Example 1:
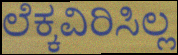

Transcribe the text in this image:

ಲೆಕ್ಕವಿರಿಸಿಲ್ಲ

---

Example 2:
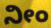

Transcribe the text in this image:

ನೀಂ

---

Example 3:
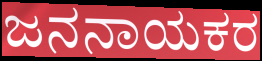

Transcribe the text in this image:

ಜನನಾಯಕರ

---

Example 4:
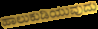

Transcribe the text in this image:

ಹಾಲುಕುಡಿಯುವುದು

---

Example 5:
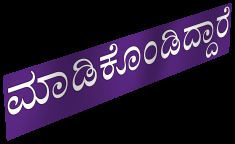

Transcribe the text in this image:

ಮಾಡಿಕೊಂಡಿದ್ದಾರೆ